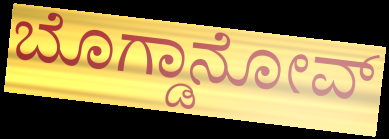
ಬೊಗ್ಡಾನೋವ್